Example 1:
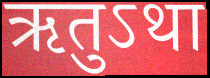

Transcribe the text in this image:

ऋतुऽथा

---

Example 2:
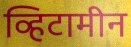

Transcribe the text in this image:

व्हिटामीन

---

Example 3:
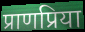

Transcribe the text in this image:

प्राणप्रिया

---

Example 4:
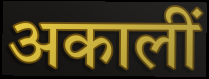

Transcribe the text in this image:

अकालीं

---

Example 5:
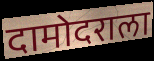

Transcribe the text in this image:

दामोदराला